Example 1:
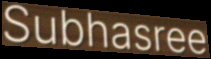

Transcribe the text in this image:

Subhasree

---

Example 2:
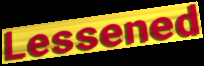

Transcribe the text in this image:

Lessened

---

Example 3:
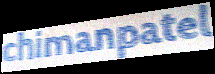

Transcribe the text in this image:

chimanpatel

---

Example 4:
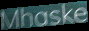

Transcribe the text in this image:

Mhaske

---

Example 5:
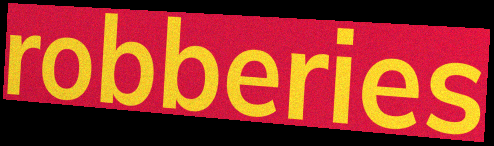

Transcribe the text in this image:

robberies